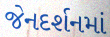
જેનદર્શનમાં